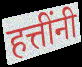
हत्तींनी